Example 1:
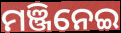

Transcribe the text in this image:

ମଞ୍ଜିନେଇ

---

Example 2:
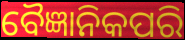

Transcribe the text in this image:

ବୈଜ୍ଞାନିକପରି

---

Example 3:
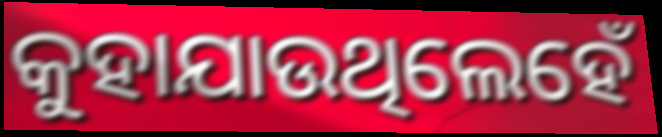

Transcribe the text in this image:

କୁହାଯାଉଥିଲେହେଁ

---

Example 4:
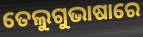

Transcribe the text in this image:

ତେଲୁଗୁଭାଷାରେ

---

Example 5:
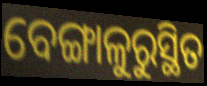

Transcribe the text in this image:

ବେଙ୍ଗାଳୁରୁସ୍ଥିତ